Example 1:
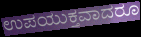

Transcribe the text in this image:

ಉಪಯುಕ್ತವಾದರೂ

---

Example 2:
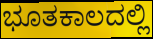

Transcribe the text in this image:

ಭೂತಕಾಲದಲ್ಲಿ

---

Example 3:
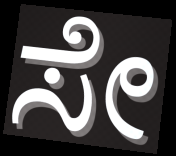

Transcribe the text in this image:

ಸೇ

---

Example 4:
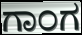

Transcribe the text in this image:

ಗಾಂಗ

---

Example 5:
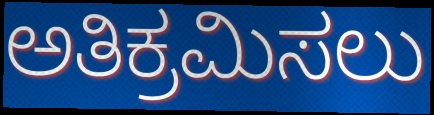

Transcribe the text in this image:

ಅತಿಕ್ರಮಿಸಲು